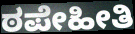
ಠಪೇಹೀತಿ